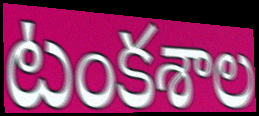
టంకశాల